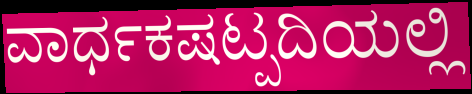
ವಾರ್ಧಕಷಟ್ಪದಿಯಲ್ಲಿ